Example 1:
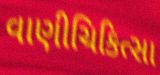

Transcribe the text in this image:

વાણીચિકિત્સા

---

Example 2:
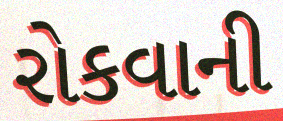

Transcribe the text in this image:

રોકવાની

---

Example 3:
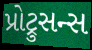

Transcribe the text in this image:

પ્રોટ્રુસન્સ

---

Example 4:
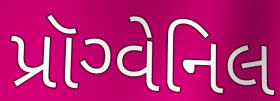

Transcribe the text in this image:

પ્રૉગ્વેનિલ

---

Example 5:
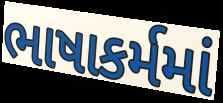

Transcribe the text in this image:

ભાષાકર્મમાં